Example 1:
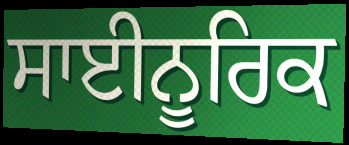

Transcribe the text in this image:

ਸਾਈਨੂਰਿਕ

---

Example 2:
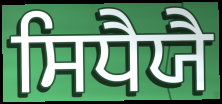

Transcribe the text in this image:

ਸਿਧੈਯੈ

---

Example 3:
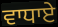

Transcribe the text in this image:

ਵਾਧਾਏ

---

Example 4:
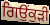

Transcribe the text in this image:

ਗਿਉਂਕੁੜੀ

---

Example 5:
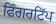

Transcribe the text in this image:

ਫਿੰਗਰਟਿੱਪ